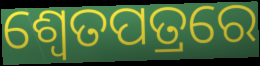
ଶ୍ଵେତପତ୍ରରେ